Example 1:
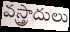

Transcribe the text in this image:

వస్త్రాదులు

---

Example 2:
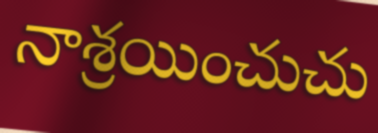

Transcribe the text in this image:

నాశ్రయించుచు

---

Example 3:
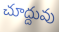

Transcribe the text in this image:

చూద్దువు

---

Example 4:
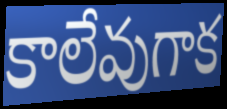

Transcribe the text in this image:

కాలేవుగాక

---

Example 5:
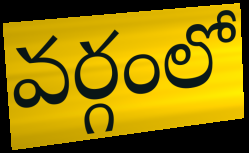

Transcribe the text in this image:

వర్గంలో